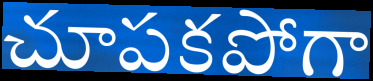
చూపకపోగా